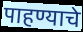
पाहण्याचे